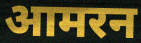
आमरन